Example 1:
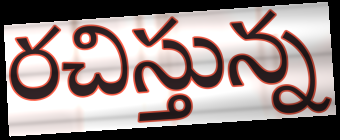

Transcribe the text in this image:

రచిస్తున్న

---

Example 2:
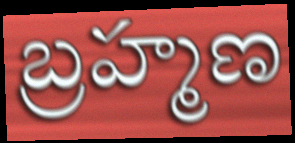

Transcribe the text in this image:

బ్రహ్మణ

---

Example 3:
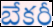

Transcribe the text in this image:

బేకరీ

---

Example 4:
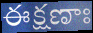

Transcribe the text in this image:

ఈక్షణాః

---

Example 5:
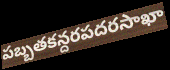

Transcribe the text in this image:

పబ్బతకన్దరపదరసాఖా